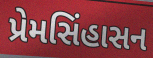
પ્રેમસિંહાસન